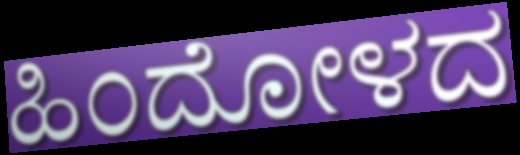
ಹಿಂದೋಳದ